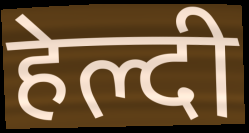
हेल्दी